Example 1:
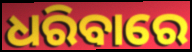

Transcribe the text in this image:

ଧରିବାରେ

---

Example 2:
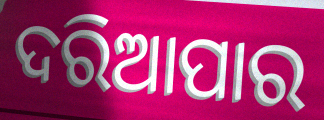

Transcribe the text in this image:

ଦରିଆପାର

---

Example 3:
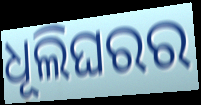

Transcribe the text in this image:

ଧୂଲିଘରର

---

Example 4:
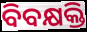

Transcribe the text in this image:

ବିବକ୍ଷକ୍ତି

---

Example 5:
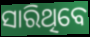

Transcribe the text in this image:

ସାରିଥିବେ